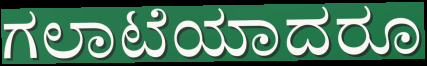
ಗಲಾಟೆಯಾದರೂ